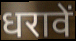
धरावें